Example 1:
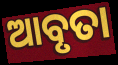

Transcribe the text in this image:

ଆବୃତା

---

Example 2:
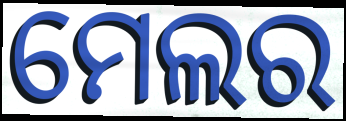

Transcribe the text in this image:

ମେଲର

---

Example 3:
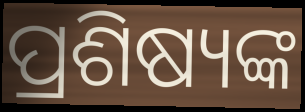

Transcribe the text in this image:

ପ୍ରଶିଷ୍ୟଙ୍କ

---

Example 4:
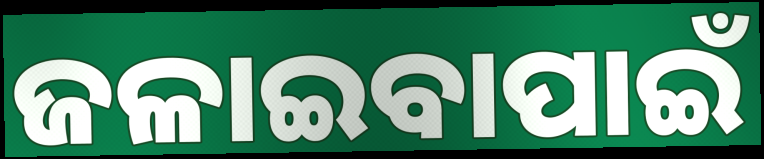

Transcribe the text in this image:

ଜଳାଇବାପାଇଁ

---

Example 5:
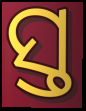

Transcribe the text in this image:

ସ୍ତ